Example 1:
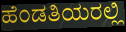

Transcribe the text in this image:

ಹೆಂಡತಿಯರಲ್ಲಿ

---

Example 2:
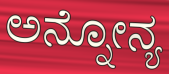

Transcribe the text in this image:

ಅನ್ನೋನ್ಯ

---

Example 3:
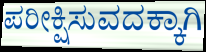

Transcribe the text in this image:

ಪರೀಕ್ಷಿಸುವದಕ್ಕಾಗಿ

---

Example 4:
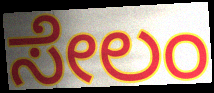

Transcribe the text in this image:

ಸೇಲಂ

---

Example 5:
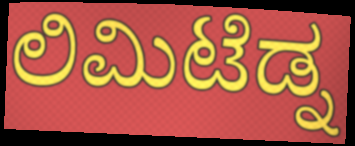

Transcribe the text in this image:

ಲಿಮಿಟೆಡ್ನ